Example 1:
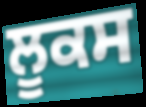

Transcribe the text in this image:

ਲੂਕਸ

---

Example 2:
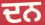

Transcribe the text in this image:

ਦਨ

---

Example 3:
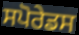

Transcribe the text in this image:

ਸਪੋਰੇਡਸ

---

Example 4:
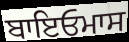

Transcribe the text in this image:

ਬਾਇਓਮਾਸ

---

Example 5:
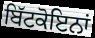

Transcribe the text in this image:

ਬਿੱਟਕੋਇਨਾਂ